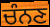
ਚੰਨਣ